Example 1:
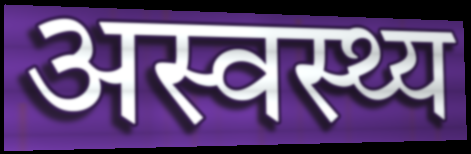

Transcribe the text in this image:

अस्वस्थ्य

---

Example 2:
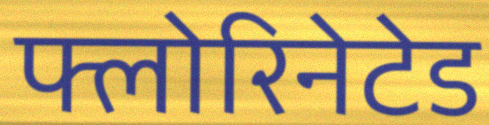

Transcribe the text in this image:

फ्लोरिनेटेड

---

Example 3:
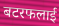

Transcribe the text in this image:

बटरफलाई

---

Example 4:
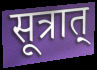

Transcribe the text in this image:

सूत्रात्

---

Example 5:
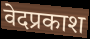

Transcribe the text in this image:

वेदप्रकाश